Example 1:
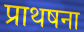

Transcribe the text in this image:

प्राथषना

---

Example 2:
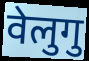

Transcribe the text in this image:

वेलुगु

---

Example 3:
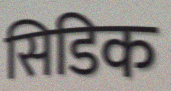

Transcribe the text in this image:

सिडिक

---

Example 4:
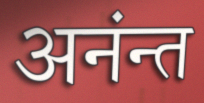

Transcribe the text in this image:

अनंन्त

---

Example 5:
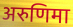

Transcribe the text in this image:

अरुणिमा